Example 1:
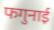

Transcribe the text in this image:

फगुनाई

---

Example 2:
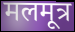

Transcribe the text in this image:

मलमूत्र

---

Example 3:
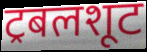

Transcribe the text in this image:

ट्रबलशूट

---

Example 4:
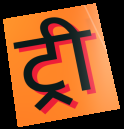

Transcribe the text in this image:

ट्री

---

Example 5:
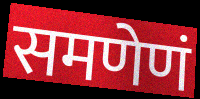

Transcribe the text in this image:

समणेणं